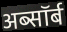
अब्सॉर्ब